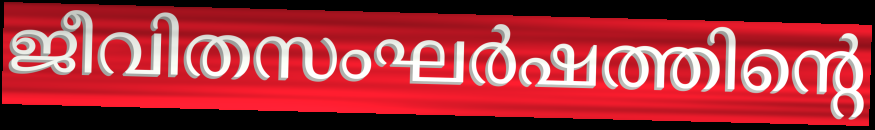
ജീവിതസംഘർഷത്തിന്റെ